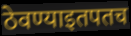
ठेवण्याइतपतच